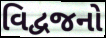
વિદ્વજનો